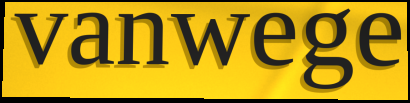
vanwege